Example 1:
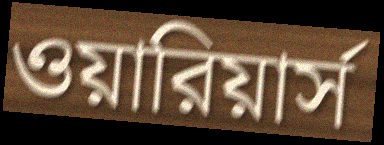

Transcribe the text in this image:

ওয়ারিয়ার্স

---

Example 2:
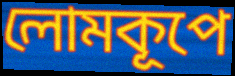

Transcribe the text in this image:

লোমকূপে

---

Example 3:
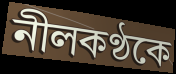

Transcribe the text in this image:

নীলকণ্ঠকে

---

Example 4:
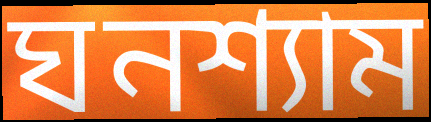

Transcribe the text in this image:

ঘনশ্যাম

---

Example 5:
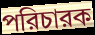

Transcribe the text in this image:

পরিচারক